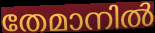
തേമാനിൽ